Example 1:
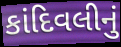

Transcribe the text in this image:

કાંદિવલીનું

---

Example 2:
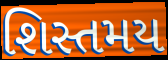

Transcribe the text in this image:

શિસ્તમય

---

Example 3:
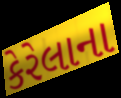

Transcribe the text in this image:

કેરેલાના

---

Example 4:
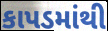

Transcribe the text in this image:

કાપડમાંથી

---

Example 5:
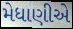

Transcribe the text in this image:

મેધાણીએ